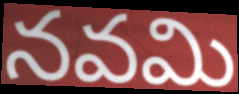
నవమి